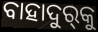
ବାହାଦୁର୍‌କୁ